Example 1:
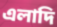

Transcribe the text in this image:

এলাদি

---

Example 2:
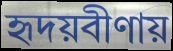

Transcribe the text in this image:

হৃদয়বীণায়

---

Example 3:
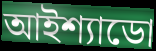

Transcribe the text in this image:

আইশ্যাডো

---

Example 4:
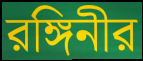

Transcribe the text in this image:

রঙ্গিনীর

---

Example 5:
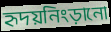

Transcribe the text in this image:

হৃদয়নিংড়ানো